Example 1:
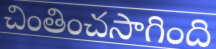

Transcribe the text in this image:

చింతించసాగింది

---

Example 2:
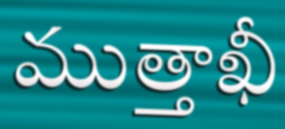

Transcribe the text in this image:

ముత్తాఖీ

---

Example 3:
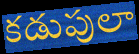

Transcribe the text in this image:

కడుపులా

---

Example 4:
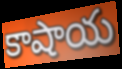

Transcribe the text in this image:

కాషాయ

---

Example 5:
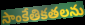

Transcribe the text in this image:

సాంకేతికతలను